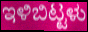
ಇಳಿಬಿಟ್ಟಳು